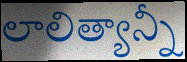
లాలిత్యాన్నీ